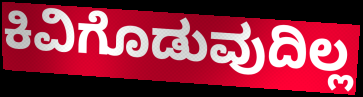
ಕಿವಿಗೊಡುವುದಿಲ್ಲ